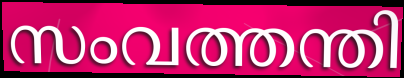
സംവത്തന്തി